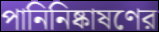
পানিনিষ্কাষণের